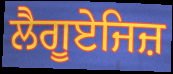
ਲੈਗੂਏਜਿਜ਼